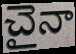
చైనా